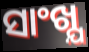
ସାଂଖ୍ଯ